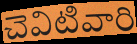
చెవిటివారి